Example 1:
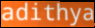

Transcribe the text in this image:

adithya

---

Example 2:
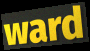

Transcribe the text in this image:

ward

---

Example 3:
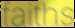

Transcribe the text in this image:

faiths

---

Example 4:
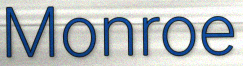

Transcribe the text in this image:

Monroe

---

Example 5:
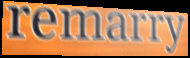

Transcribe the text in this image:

remarry